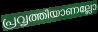
പ്രവൃത്തിയാണല്ലോ